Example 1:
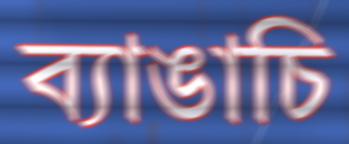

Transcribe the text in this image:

ব্যাঙাচি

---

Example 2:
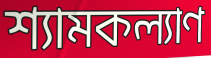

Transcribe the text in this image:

শ্যামকল্যাণ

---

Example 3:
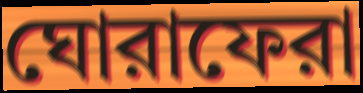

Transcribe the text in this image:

ঘোরাফেরা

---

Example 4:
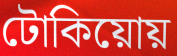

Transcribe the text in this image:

টোকিয়োয়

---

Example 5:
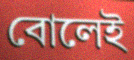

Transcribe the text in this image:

বোলেই